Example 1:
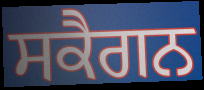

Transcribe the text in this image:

ਸਕੈਗਨ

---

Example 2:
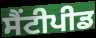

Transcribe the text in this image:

ਸੈਂਟੀਪੀਡ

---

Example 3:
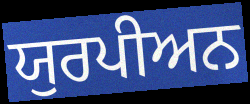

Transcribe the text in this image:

ਯੁਰਪੀਅਨ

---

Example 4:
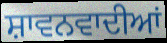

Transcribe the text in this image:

ਸ਼ਾਵਨਵਾਦੀਆਂ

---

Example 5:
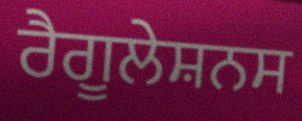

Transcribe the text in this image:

ਰੈਗੂਲੇਸ਼ਨਸ